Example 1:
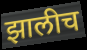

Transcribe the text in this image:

झालीच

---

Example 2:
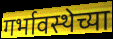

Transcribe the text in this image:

गर्भावस्थेच्या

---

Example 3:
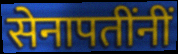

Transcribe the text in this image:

सेनापतींनीं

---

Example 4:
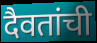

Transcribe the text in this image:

दैवतांची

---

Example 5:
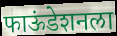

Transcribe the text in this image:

फाऊंडेशनला